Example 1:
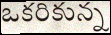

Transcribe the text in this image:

ఒకరికున్న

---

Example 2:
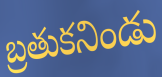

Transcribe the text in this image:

బ్రతుకనిండు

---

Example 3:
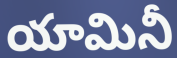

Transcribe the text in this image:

యామినీ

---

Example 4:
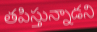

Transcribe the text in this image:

తపిస్తున్నాడని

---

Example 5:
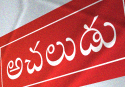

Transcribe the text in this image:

అచలుడు